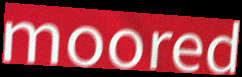
moored